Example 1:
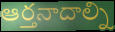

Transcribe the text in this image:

ఆర్తనాదాల్ని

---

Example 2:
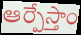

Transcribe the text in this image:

ఆర్పేస్తాం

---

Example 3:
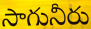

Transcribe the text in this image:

సాగునీరు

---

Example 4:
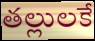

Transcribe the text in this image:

తల్లులకే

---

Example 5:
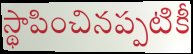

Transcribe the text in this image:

స్థాపించినప్పటికీ